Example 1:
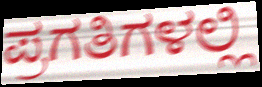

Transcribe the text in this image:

ಪ್ರಗತಿಗಳಲ್ಲಿ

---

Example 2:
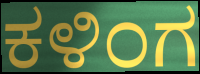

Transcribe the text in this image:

ಕಳಿಂಗ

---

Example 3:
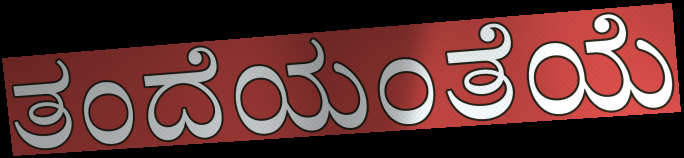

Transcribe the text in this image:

ತಂದೆಯಂತೆಯೆ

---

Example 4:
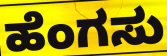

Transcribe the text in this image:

ಹೆಂಗಸು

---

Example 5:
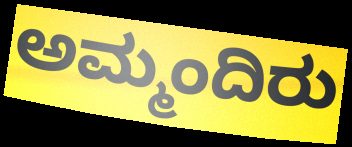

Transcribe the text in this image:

ಅಮ್ಮಂದಿರು